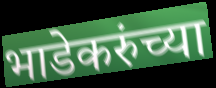
भाडेकरुंच्या